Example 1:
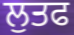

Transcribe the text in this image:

ਲੁਤਫ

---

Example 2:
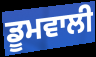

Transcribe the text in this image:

ਡੂਮਵਾਲੀ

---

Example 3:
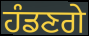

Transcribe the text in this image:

ਹੰਡਣਗੇ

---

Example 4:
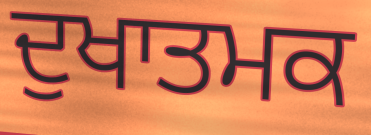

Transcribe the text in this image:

ਦੁਖਾਤਮਕ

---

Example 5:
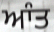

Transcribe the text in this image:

ਆੰਤ